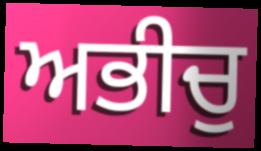
ਅਭੀਚੁ